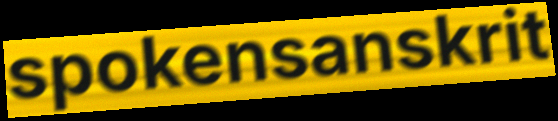
spokensanskrit